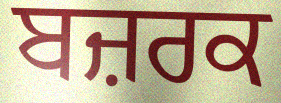
ਬਜ਼ਰਕ